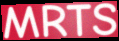
MRTS